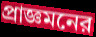
প্রাজ্ঞমনের